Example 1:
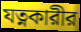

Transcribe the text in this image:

যত্নকারীর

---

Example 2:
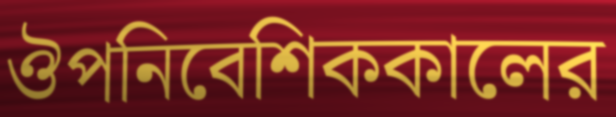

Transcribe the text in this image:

ঔপনিবেশিককালের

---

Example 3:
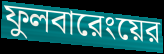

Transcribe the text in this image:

ফুলবারেংয়ের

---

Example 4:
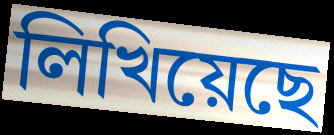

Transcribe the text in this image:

লিখিয়েছে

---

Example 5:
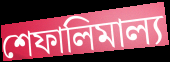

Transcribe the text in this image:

শেফালিমাল্য